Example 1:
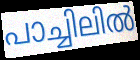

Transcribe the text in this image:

പാച്ചിലിൽ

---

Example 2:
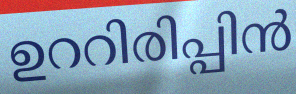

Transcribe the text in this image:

ഉററിരിപ്പിൻ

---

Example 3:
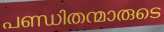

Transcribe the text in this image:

പണ്ഡിതന്മാരുടെ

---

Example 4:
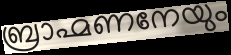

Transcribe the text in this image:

ബ്രാഹ്മണനേയും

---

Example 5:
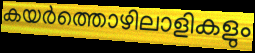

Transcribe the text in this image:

കയർത്തൊഴിലാളികളും